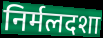
निर्मलदशा